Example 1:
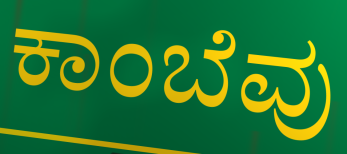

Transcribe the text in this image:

ಕಾಂಬೆವು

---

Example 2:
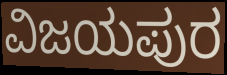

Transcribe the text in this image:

ವಿಜಯಪುರ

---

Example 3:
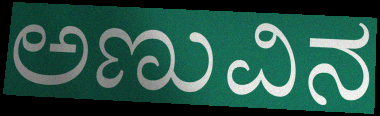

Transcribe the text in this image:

ಅಣುವಿನ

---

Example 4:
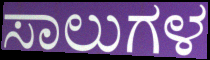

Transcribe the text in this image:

ಸಾಲುಗಳ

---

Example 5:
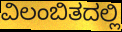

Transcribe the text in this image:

ವಿಲಂಬಿತದಲ್ಲಿ